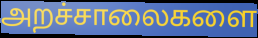
அறச்சாலைகளை